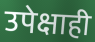
उपेक्षाही